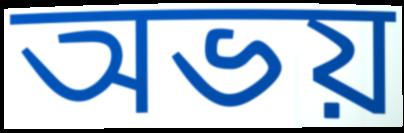
অভয়